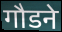
गौडने